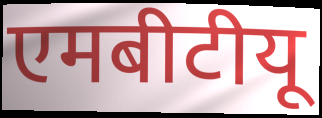
एमबीटीयू